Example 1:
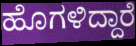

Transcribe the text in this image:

ಹೊಗಳಿದ್ದಾರೆ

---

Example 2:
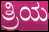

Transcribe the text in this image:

ತ್ರಿಯ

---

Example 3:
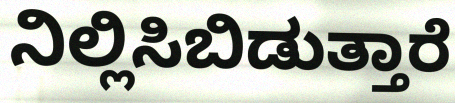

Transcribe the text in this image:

ನಿಲ್ಲಿಸಿಬಿಡುತ್ತಾರೆ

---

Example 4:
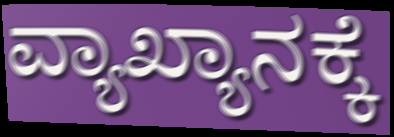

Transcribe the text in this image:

ವ್ಯಾಖ್ಯಾನಕ್ಕೆ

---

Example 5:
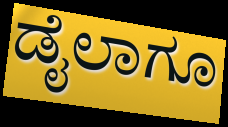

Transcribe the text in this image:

ಡೈಲಾಗೂ